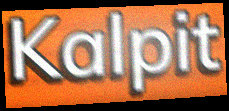
Kalpit